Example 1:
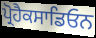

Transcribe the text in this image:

ਪ੍ਰੋਹੈਕਸਾਡਿਓਨ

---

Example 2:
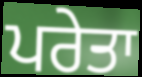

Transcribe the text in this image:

ਪਰੇਤਾ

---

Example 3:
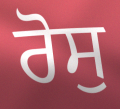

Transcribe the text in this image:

ਰੋਸੁ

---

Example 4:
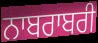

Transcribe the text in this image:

ਨਾਬਰਾਬਰੀ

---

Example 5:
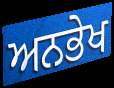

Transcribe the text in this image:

ਅਨਭੇਖ